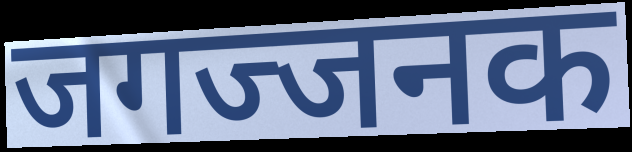
जगज्जनक